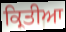
ਕ੍ਰਿਤੀਆ